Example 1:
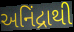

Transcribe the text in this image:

અનિંદ્રાથી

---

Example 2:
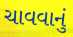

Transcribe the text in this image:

ચાવવાનું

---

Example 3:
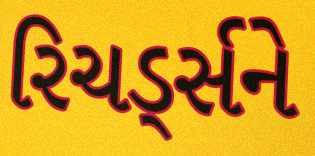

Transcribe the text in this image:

રિચર્ડ્સને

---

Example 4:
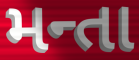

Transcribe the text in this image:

મન્તા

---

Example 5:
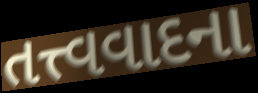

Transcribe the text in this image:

તત્ત્વવાદના